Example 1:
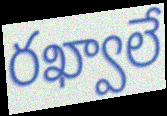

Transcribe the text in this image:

రఖ్వాలే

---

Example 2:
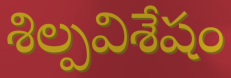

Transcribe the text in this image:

శిల్పవిశేషం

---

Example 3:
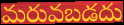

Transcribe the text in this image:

మరువబడదు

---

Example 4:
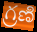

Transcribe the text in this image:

గ్రణి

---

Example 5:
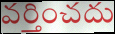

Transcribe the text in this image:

వర్తించదు